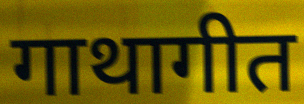
गाथागीत